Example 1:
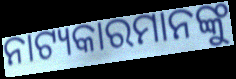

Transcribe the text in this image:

ନାଟ୍ଯକାରମାନଙ୍କୁ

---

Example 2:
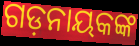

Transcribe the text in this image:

ଗଡ଼ନାୟକଙ୍କ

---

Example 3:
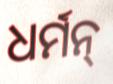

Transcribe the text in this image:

ଧର୍ମନ୍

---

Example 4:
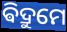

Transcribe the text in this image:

ଵିଦ୍ରୁମେ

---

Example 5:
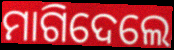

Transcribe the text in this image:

ମାଗିଦେଲେ